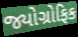
જ્યોગ્રોફિક